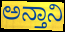
ಅನ್ತಾನಿ